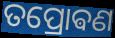
ତପ୍ରୋଵଣ